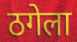
ठगेला